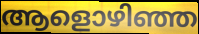
ആളൊഴിഞ്ഞ